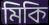
মিকি